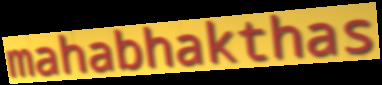
mahabhakthas